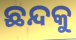
ଛନ୍ଦକୁ